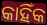
କାହିଁକ